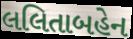
લલિતાબહેન